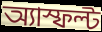
অ্যাস্ফল্ট